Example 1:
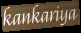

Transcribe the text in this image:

kankariya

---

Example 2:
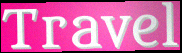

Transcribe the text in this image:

Travel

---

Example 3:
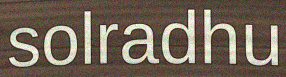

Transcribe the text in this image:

solradhu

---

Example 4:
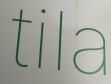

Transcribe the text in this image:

tila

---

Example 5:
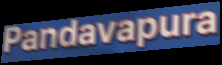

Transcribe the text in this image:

Pandavapura